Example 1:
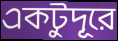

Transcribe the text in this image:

একটুদূরে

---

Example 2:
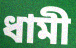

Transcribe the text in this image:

ধামী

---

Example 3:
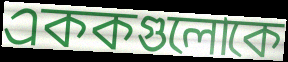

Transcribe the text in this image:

এককগুলোকে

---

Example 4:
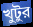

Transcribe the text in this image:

খুটুর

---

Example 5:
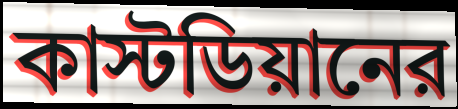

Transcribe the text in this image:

কাস্টডিয়ানের